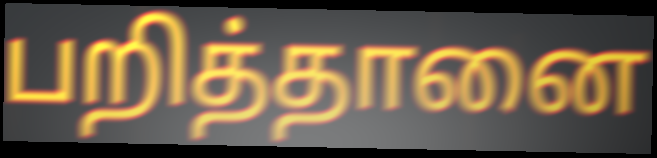
பறித்தானை